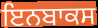
ਇਨਬਾਕਸ